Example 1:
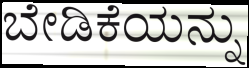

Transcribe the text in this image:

ಬೇಡಿಕೆಯನ್ನು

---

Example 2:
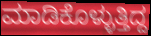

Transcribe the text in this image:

ಮಾಡಿಕೊಳ್ಳುತ್ತಿದ್ದ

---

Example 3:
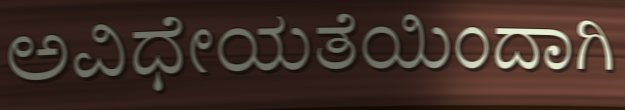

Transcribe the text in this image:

ಅವಿಧೇಯತೆಯಿಂದಾಗಿ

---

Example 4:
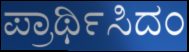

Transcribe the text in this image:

ಪ್ರಾರ್ಥಿಸಿದಂ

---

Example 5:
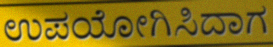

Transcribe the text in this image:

ಉಪಯೋಗಿಸಿದಾಗ